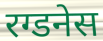
रग्डनेस